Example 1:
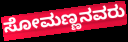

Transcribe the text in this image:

ಸೋಮಣ್ಣನವರು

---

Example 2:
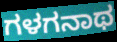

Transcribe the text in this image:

ಗಳಗನಾಥ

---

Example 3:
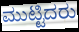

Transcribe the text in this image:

ಮುಟ್ಟಿದರು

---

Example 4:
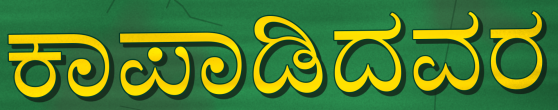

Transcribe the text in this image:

ಕಾಪಾಡಿದವರ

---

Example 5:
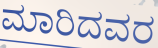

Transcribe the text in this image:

ಮಾರಿದವರ